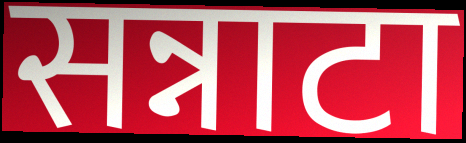
सन्नाटा